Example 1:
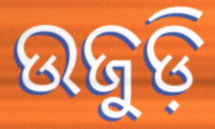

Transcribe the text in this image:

ଉଜୁଡ଼ି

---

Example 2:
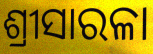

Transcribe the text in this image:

ଶ୍ରୀସାରଳା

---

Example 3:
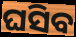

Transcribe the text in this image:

ଘସିବ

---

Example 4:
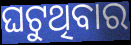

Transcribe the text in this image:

ଘଟୁଥିବାର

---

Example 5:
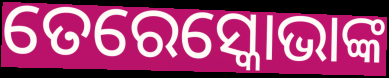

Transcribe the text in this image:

ତେରେସ୍କୋଭାଙ୍କ